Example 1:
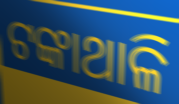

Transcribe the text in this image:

ଟଙ୍କାଥାଳି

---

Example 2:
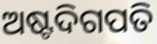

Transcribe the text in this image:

ଅଷ୍ଟଦିଗପତି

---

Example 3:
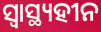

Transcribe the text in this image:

ସ୍ୱାସ୍ଥ୍ୟହୀନ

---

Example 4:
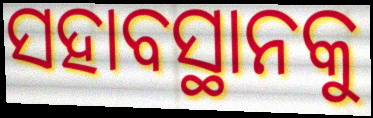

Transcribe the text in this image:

ସହାବସ୍ଥାନକୁ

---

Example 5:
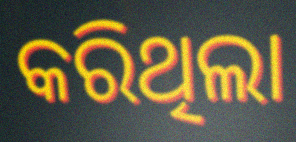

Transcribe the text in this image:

କରିଥିଲା